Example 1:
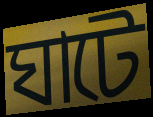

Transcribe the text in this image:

ঘাটে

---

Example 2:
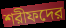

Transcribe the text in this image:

শরীফদের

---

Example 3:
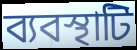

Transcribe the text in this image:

ব্যবস্থাটি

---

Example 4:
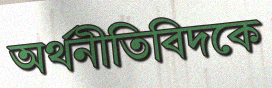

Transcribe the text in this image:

অর্থনীতিবিদকে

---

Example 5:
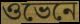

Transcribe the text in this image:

ওভেনে